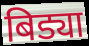
बिड्या